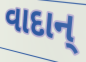
વાદાન્